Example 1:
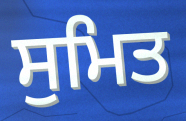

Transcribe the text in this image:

ਸੁਮਿਤ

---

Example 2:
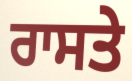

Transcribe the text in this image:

ਰਾਸਤੇ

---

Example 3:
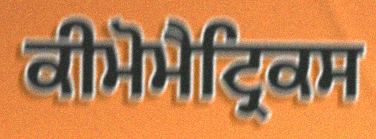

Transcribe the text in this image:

ਕੀਮੋਮੈਟ੍ਰਿਕਸ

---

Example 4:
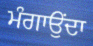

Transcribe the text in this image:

ਮੰਗਾਉਂਦਾ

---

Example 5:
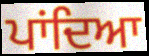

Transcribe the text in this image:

ਪਾਂਦਿਆ